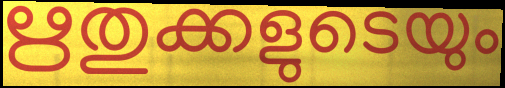
ഋതുക്കളുടെയും